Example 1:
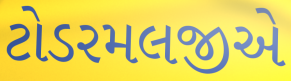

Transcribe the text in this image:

ટોડરમલજીએ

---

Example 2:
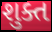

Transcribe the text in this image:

શુક્ત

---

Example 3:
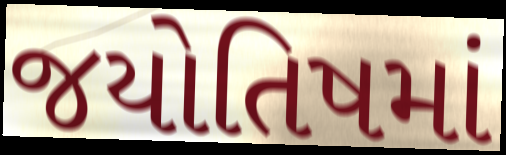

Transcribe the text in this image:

જયોતિષમાં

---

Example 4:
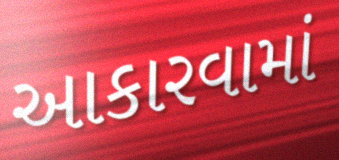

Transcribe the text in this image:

આકારવામાં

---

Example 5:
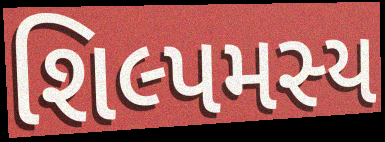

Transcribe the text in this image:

શિલ્પમસ્ય